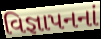
વિજ્ઞાપનનાં